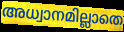
അധ്വാനമില്ലാതെ